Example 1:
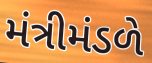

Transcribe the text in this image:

મંત્રીમંડળે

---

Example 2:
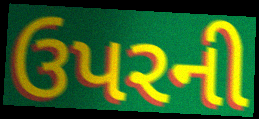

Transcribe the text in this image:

ઉપરની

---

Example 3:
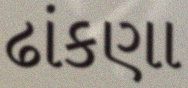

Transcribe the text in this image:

ઢાંકણા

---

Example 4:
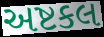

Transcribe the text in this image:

અષ્ટકલ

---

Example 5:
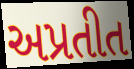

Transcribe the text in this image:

અપ્રતીત